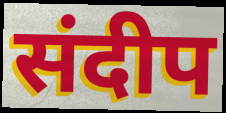
संदीप